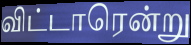
விட்டாரென்று